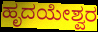
ಹೃದಯೇಶ್ವರ